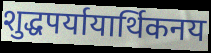
शुद्धपर्यायार्थिकनय